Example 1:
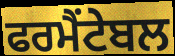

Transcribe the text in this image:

ਫਰਮੈਂਟੇਬਲ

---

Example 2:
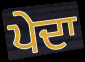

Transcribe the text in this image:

ਪੇਦਾ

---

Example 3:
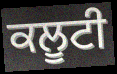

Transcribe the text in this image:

ਕਲੂਟੀ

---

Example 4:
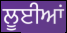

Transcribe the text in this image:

ਲੂਈਆਂ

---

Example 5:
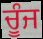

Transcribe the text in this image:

ਚੂੰਜ